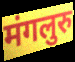
मंगलुरु